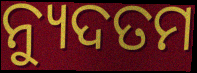
ନ୍ୟୁଦତମ